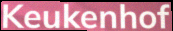
Keukenhof